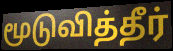
மூடுவித்தீர்